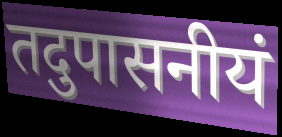
तदुपासनीयं